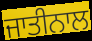
ਜਾਤੀਨਾਲ